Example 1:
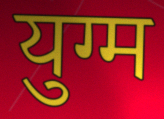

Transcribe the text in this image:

युग्म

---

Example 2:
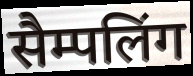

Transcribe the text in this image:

सैम्पलिंग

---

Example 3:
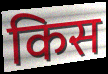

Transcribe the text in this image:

किस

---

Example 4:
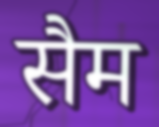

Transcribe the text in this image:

सैम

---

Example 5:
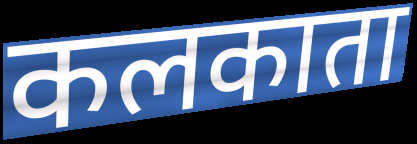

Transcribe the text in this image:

कलकाता